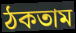
ঠকতাম